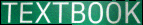
TEXTBOOK